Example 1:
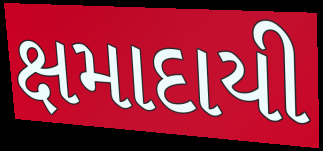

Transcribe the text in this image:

ક્ષમાદાયી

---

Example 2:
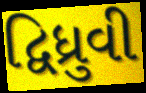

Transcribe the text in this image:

દ્વિધ્રુવી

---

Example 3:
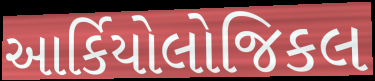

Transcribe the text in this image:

આર્કિયોલોજિકલ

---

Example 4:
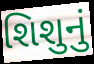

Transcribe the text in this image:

શિશુનું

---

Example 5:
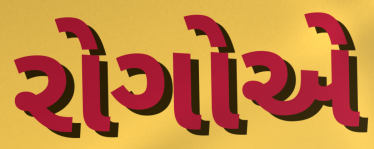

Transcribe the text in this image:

રોગોએ